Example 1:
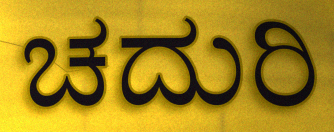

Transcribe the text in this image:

ಚದುರಿ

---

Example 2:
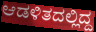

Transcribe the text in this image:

ಆಡಳಿತದಲ್ಲಿದ್ದ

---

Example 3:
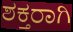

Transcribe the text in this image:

ಶಕ್ತರಾಗಿ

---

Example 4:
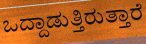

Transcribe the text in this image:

ಒದ್ದಾಡುತ್ತಿರುತ್ತಾರೆ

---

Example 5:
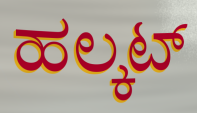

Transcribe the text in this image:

ಹಲ್ಕಟ್